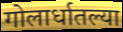
गोलार्धातल्या